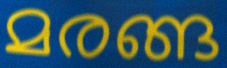
മരങ്ങ